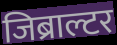
जिब्राल्टर